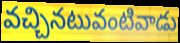
వచ్చినటువంటివాడు